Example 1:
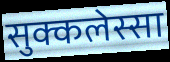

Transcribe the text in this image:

सुक्कलेस्सा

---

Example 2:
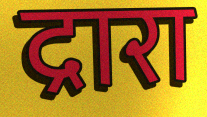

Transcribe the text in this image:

द्रारा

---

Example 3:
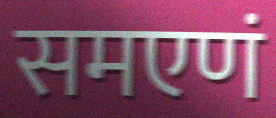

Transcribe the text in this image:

समएणं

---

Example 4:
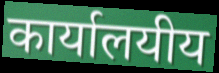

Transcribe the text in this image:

कार्यालयीय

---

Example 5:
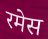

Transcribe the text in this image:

रमेस